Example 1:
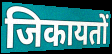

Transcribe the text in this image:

जिकायतों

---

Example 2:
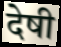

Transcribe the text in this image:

देषी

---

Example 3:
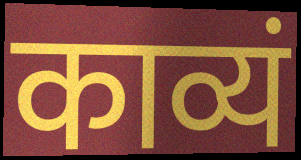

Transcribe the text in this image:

काव्यं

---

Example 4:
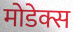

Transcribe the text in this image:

मोडेक्स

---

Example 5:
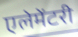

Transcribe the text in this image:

एलेमेंटरी